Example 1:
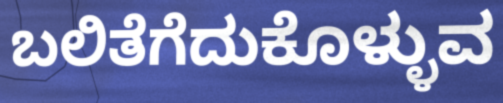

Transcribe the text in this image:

ಬಲಿತೆಗೆದುಕೊಳ್ಳುವ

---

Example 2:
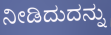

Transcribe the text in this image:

ನೀಡಿದುದನ್ನು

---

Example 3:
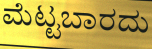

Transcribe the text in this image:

ಮೆಟ್ಟಬಾರದು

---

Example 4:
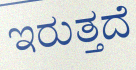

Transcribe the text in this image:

ಇರುತ್ತದೆ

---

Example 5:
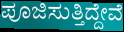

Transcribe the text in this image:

ಪೂಜಿಸುತ್ತಿದ್ದೇವೆ